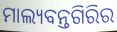
ମାଲ୍ୟବନ୍ତଗିରିର